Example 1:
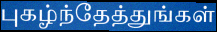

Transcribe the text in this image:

புகழ்ந்தேத்துங்கள்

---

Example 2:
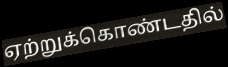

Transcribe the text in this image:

ஏற்றுக்கொண்டதில்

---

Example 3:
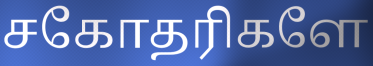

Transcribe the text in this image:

சகோதரிகளே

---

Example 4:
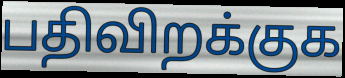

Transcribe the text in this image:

பதிவிறக்குக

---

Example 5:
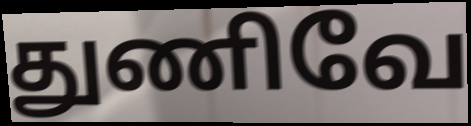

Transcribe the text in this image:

துணிவே